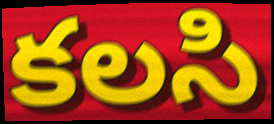
కలసి